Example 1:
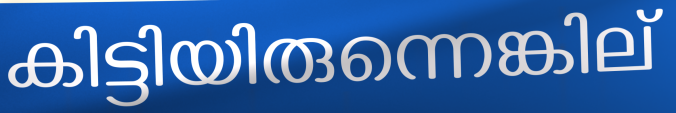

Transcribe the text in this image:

കിട്ടിയിരുന്നെങ്കില്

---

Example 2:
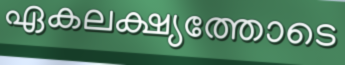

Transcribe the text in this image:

ഏകലക്ഷ്യത്തോടെ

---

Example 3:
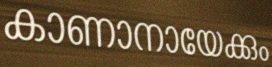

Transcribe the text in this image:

കാണാനായേക്കും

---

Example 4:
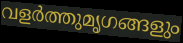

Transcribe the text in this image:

വളർത്തുമൃഗങ്ങളും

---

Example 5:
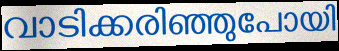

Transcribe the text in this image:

വാടിക്കരിഞ്ഞുപോയി